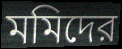
মমিদের